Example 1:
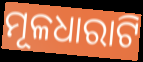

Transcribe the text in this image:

ମୂଳଧାରାଟି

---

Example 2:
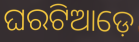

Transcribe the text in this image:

ଘରଟିଆଡ଼େ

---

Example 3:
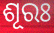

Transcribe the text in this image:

ଶୂରଃ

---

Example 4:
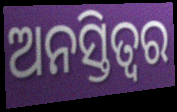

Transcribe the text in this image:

ଅନସ୍ତିତ୍ୱର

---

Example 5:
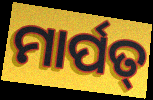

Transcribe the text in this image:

ମାର୍ପତ୍